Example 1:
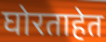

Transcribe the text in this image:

घोरताहेत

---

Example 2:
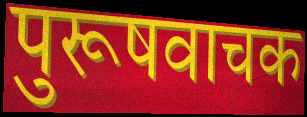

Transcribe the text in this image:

पुरूषवाचक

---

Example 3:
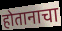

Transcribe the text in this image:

होतानाचा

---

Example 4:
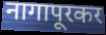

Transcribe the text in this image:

नागापूरकर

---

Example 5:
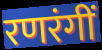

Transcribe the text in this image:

रणरंगीं